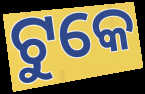
ଟୁକେ